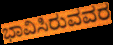
ಭಾವಿಸಿರುವವರ